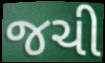
જચી